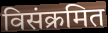
विसंक्रमित